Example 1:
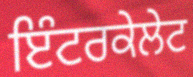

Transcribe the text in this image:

ਇੰਟਰਕੇਲੇਟ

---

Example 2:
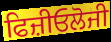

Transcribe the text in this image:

ਫਿਜ਼ੀਓਲੋਜੀ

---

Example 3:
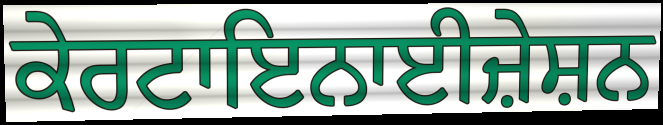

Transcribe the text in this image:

ਕੇਰਟਾਇਨਾਈਜ਼ੇਸ਼ਨ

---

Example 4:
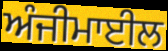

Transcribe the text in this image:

ਅੰਜੀਮਾਈਲ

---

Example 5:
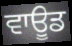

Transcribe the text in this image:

ਵਾਊਡ